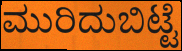
ಮುರಿದುಬಿಟ್ಟೆ